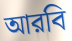
আরবি